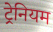
ट्रेनियम